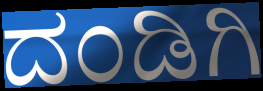
ದಂಡಿಗಿ